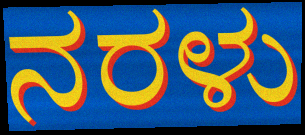
ನರಳು